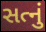
સત્નું